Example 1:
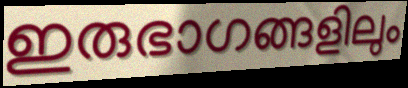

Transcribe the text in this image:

ഇരുഭാഗങ്ങളിലും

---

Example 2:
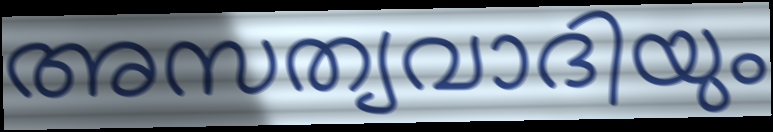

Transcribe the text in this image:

അസത്യവാദിയും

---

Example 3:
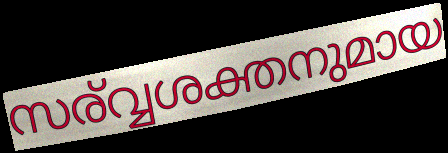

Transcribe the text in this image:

സര്വ്വശക്തനുമായ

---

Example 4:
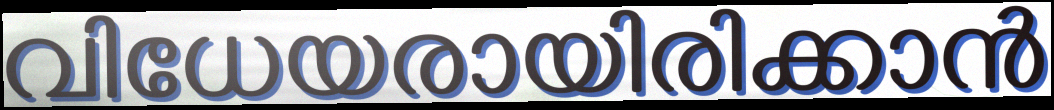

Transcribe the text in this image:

വിധേയരായിരിക്കാൻ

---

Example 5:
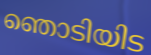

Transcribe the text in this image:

ഞൊടിയിട